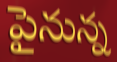
పైనున్న